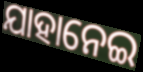
ଯାହାନେଇ